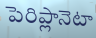
పెరిప్లానెటా